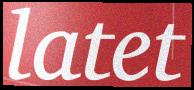
latet